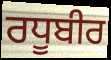
ਰਧੂਬੀਰ